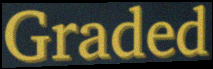
Graded